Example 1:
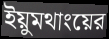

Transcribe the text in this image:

ইয়ুমথাংয়ের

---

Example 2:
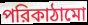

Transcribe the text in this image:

পরিকাঠামো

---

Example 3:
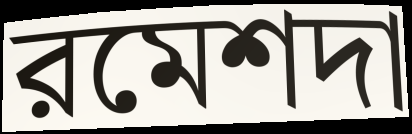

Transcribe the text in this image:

রমেশদা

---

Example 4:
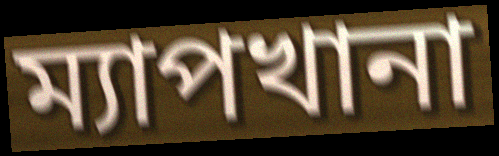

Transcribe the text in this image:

ম্যাপখানা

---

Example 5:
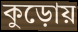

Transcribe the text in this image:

কুড়োয়